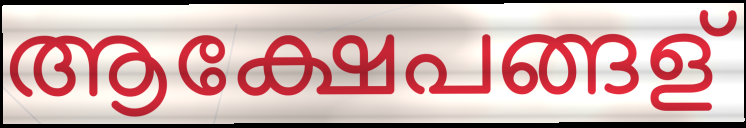
ആക്ഷേപങ്ങള്